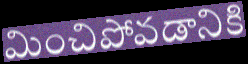
మించిపోవడానికి